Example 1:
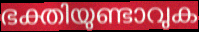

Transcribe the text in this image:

ഭക്തിയുണ്ടാവുക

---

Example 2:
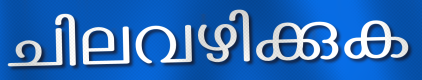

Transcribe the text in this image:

ചിലവഴിക്കുക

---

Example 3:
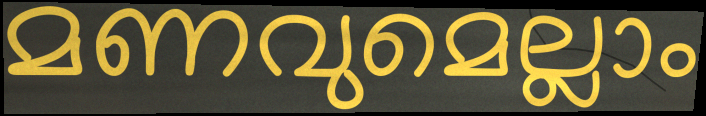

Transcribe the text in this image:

മണവുമെല്ലാം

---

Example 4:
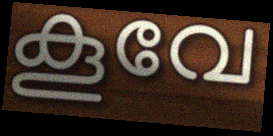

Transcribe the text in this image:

കൂവേ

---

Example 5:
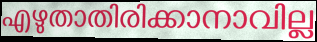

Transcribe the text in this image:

എഴുതാതിരിക്കാനാവില്ല